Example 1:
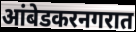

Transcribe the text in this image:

आंबेडकरनगरात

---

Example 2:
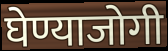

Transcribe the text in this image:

घेण्याजोगी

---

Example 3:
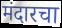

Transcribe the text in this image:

मंदारचा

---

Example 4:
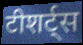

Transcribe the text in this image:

टीशर्ट्स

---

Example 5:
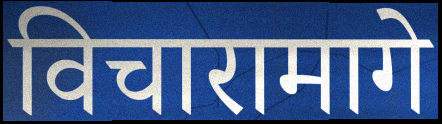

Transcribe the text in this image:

विचारामागे